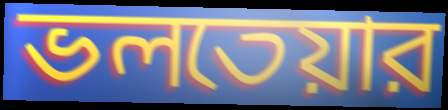
ভলতেয়ার